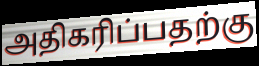
அதிகரிப்பதற்கு